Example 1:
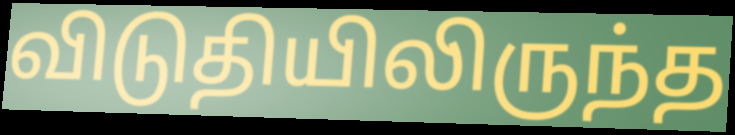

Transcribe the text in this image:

விடுதியிலிருந்த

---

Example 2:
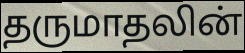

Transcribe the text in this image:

தருமாதலின்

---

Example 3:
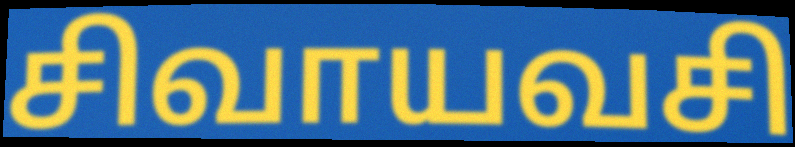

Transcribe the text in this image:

சிவாயவசி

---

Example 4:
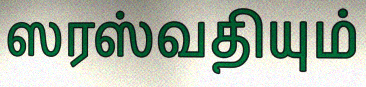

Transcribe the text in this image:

ஸரஸ்வதியும்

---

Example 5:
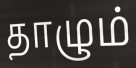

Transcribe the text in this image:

தாழும்